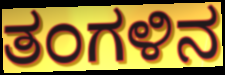
ತಂಗಳಿನ